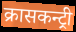
क्रासकन्ट्री